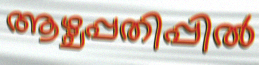
ആഴ്ചപ്പതിപ്പിൽ